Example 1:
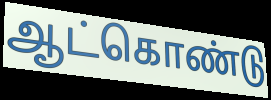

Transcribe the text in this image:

ஆட்கொண்டு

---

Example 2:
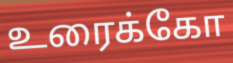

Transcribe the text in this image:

உரைக்கோ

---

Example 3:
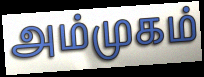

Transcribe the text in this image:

அம்முகம்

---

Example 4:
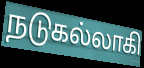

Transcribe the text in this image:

நடுகல்லாகி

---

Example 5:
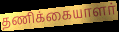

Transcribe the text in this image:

தணிக்கையாளர்